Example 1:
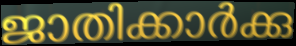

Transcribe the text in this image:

ജാതിക്കാർക്കു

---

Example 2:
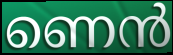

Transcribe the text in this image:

ണെൻ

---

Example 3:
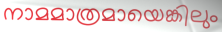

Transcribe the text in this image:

നാമമാത്രമായെങ്കിലും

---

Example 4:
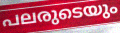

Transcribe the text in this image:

പലരുടെയും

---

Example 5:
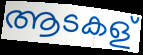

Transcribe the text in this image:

ആടകള്